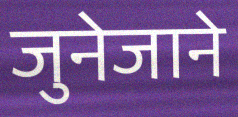
जुनेजाने